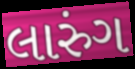
લારુંગ